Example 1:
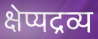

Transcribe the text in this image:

क्षेप्यद्रव्य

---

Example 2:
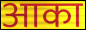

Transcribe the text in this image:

आका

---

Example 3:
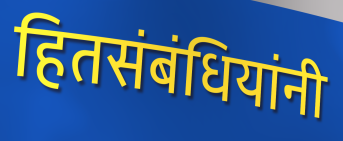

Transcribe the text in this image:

हितसंबंधियांनी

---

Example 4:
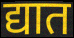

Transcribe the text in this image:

द्यात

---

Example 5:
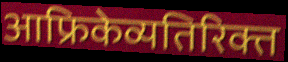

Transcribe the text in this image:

आफ्रिकेव्यतिरिक्त